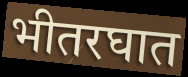
भीतरघात